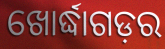
ଖୋର୍ଦ୍ଧାଗଡ଼ର